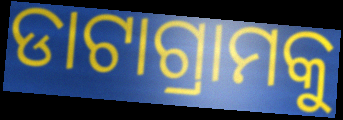
ଡାଟାଗ୍ରାମକୁ